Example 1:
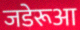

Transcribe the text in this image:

जडेरूआ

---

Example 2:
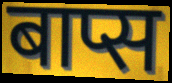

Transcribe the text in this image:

बाप्स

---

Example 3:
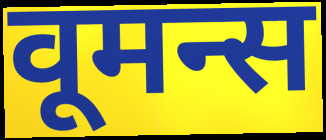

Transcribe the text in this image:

वूमन्स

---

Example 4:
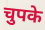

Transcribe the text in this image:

चुपके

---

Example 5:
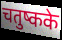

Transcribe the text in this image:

चतुष्कके